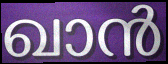
ഖാൻ